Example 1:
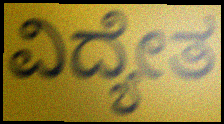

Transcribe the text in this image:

ವಿದ್ಯೇತ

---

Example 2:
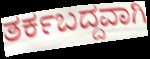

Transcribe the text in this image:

ತರ್ಕಬದ್ದವಾಗಿ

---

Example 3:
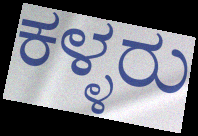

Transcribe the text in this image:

ಕಳ್ಳರು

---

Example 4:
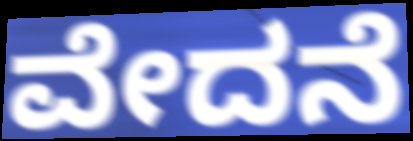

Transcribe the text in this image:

ವೇದನೆ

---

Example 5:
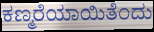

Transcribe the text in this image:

ಕಣ್ಮರೆಯಾಯಿತೆಂದು